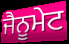
ਜੈਨੂਮੇਟ